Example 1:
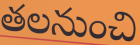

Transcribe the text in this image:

తలనుంచి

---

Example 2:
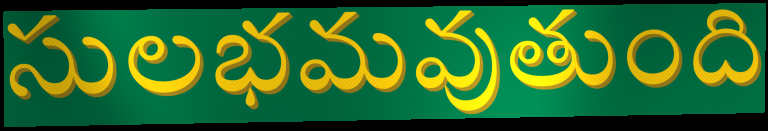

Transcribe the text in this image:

సులభమవుతుంది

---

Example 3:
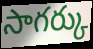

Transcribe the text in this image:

సాగర్కు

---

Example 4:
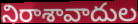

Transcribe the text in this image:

నిరాశావాదుల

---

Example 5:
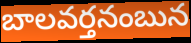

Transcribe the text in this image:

బాలవర్తనంబున